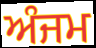
ਅੰਜਮ